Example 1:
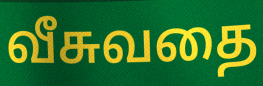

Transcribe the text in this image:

வீசுவதை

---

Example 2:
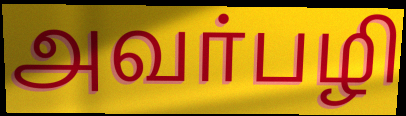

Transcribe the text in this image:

அவர்பழி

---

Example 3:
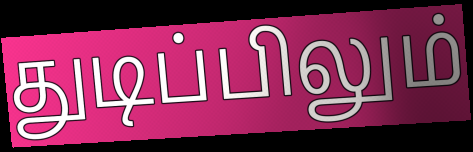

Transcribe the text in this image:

துடிப்பிலும்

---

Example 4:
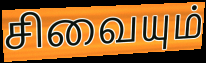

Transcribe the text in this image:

சிவையும்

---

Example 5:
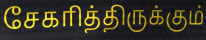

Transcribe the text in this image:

சேகரித்திருக்கும்